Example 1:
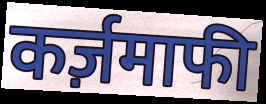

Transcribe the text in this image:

कर्ज़माफी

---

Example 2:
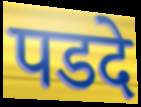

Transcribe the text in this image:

पडदे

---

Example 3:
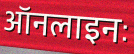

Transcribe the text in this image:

ऑनलाइनः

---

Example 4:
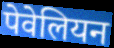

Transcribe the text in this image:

पेवेलियन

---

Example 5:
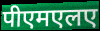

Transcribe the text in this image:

पीएमएलए